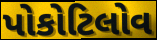
પોકોટિલોવ